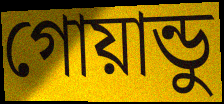
গোয়ান্ডু